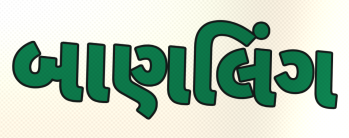
બાણલિંગ